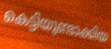
കെട്ടിയുണ്ടാക്കിയ